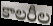
కాలరీల